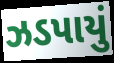
ઝડપાયું